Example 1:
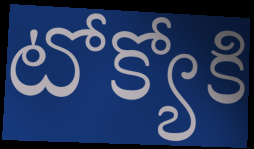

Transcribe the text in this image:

టోక్యోకి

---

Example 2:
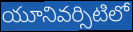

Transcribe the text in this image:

యూనివర్సిటిలో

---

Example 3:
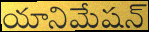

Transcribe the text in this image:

యానిమేషన్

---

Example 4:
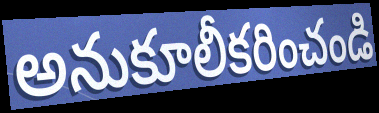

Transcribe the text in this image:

అనుకూలీకరించండి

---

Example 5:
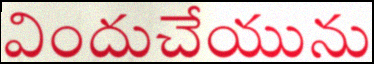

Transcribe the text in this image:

విందుచేయును